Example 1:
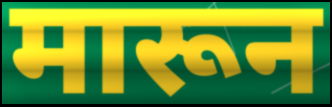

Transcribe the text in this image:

मारून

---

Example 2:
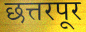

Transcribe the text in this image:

छत्तरपूर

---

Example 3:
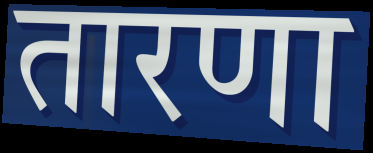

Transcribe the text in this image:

तारणा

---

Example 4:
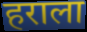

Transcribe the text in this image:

हराला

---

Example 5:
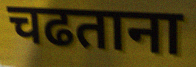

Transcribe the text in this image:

चढताना